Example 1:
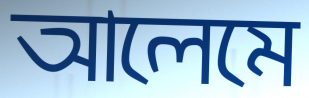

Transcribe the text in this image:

আলেমে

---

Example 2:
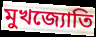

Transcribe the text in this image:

মুখজ্যোতি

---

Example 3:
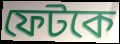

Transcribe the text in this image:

ফেটকে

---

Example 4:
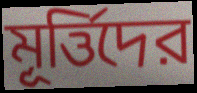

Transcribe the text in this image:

মূর্ত্তিদের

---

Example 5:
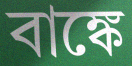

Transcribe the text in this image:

বাঙ্কে